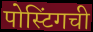
पोस्टिंगची